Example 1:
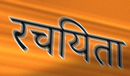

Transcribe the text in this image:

रचयिता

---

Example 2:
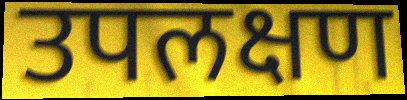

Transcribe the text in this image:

उपलक्षण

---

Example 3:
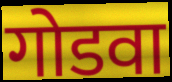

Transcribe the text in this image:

गोडवा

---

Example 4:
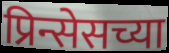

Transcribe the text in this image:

प्रिन्सेसच्या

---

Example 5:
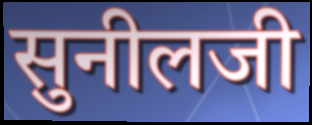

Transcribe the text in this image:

सुनीलजी